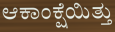
ಆಕಾಂಕ್ಷೆಯಿತ್ತು